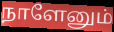
நாளேனும்